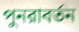
পুনরাবর্তন